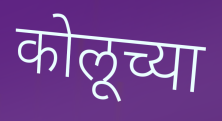
कोलूच्या